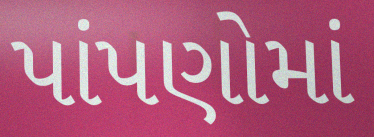
પાંપણોમાં